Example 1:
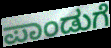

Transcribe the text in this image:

ಪಾಂಡುಗೆ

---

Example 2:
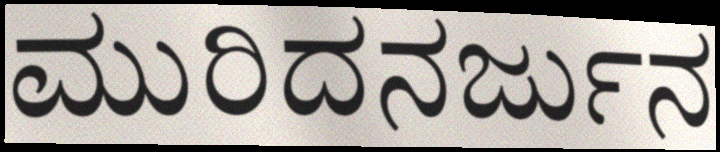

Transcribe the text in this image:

ಮುರಿದನರ್ಜುನ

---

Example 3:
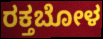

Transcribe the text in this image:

ರಕ್ತಬೋಳ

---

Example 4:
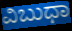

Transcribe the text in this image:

ವಿಬುಧಾ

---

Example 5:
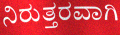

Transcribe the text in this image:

ನಿರುತ್ತರವಾಗಿ